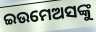
ଇଉମେଅସଙ୍କୁ